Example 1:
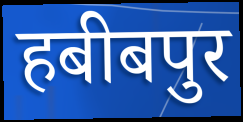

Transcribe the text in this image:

हबीबपुर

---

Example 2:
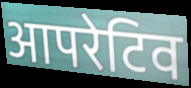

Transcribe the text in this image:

आपरेटिव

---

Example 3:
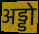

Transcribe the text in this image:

अड्डो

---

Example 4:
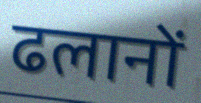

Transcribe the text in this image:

ढलानों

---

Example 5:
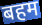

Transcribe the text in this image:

बहम